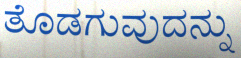
ತೊಡಗುವುದನ್ನು